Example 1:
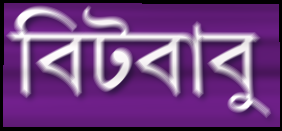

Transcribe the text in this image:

বিটবাবু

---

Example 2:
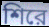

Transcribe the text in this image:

শিরে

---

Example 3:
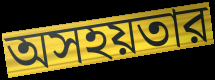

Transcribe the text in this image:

অসহয়তার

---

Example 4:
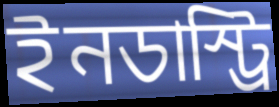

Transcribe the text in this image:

ইনডাস্ট্রি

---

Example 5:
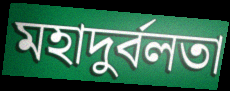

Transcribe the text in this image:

মহাদুর্বলতা